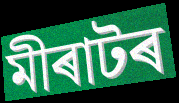
মীৰাটৰ